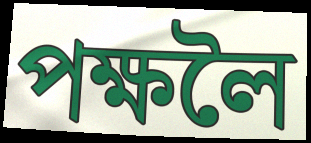
পক্ষলৈ